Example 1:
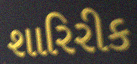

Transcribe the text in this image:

શારિરીક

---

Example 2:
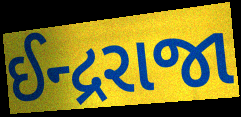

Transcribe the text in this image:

ઈન્દ્રરાજા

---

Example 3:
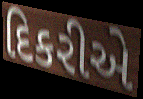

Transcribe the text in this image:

દિકરીએ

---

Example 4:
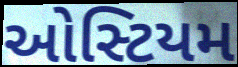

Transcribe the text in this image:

ઓસ્ટિયમ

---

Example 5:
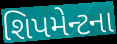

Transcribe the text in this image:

શિપમેન્ટના